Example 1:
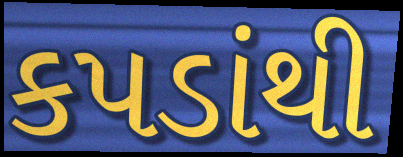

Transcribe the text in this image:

કપડાંથી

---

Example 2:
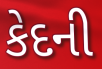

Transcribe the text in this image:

કેદની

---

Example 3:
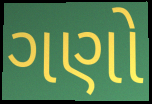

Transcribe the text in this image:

ગણો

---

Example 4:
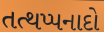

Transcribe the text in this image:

તત્થપ્પનાદો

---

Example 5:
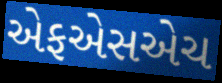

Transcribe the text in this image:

એફએસએચ